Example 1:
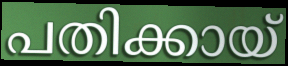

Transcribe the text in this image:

പതിക്കായ്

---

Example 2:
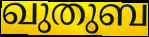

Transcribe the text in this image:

ഖുതുബ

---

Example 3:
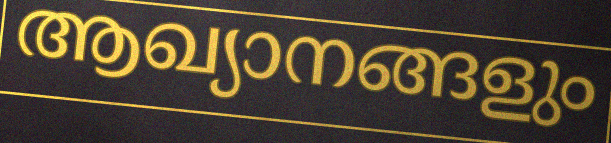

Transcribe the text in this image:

ആഖ്യാനങ്ങളും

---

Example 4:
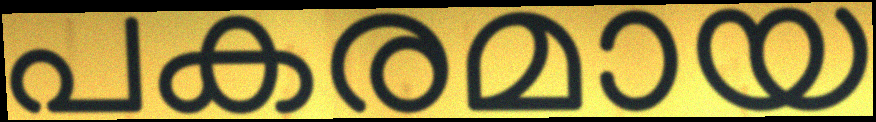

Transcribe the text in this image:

പകരമായ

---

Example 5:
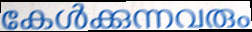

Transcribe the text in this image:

കേൾക്കുന്നവരും